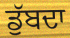
ਡੁੱਬਦਾ